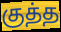
குத்த